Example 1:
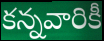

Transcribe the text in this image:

కన్నవారికీ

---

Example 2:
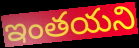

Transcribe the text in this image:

ఇంతయని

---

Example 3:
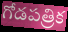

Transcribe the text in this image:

గోడపత్రిక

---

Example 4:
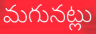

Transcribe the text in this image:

మగునట్లు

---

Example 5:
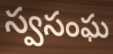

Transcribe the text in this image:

స్వసంఘ